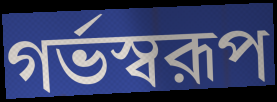
গর্ভস্বরূপ